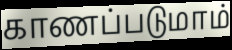
காணப்படுமாம்